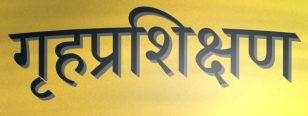
गृहप्रशिक्षण